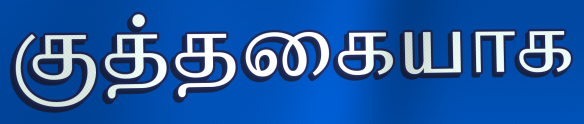
குத்தகையாக